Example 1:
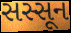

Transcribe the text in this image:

સસ્સૂન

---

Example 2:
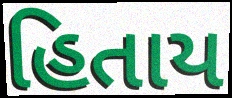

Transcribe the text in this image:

હિતાય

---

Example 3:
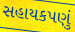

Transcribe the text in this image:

સહાયકપણું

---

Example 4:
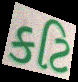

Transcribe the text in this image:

કટિ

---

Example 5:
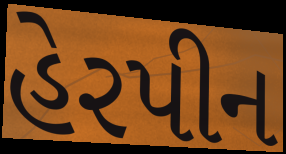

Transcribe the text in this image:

હેરપીન